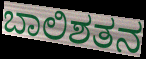
ಬಾಲಿಶತನ